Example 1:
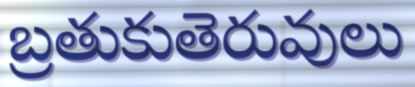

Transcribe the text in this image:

బ్రతుకుతెరువులు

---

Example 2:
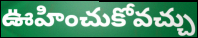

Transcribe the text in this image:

ఊహించుకోవచ్చు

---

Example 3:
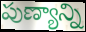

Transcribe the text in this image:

పుణ్యాన్ని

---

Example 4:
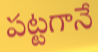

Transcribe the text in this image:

పట్టగానే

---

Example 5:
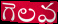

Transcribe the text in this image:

గెలవ